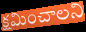
క్షమించాలని